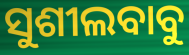
ସୁଶୀଲବାବୁ